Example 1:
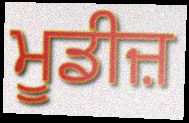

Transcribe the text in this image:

ਮੂਡੀਜ਼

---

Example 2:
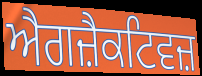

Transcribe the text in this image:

ਐਗਜ਼ੈਕਟਿਵਜ਼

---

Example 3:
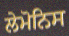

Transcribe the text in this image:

ਲੇਮੋਨਿਸ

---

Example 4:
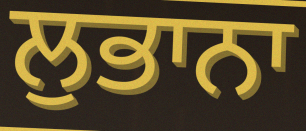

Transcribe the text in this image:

ਲੁਭਾਨਾ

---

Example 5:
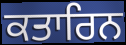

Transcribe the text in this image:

ਕਤਾਰਿਨ